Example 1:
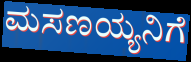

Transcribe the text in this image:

ಮಸಣಯ್ಯನಿಗೆ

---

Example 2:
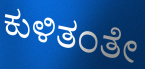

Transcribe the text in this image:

ಕುಳಿತಂತೇ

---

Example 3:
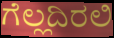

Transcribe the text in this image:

ಗೆಲ್ಲದಿರಲಿ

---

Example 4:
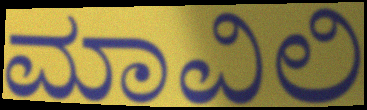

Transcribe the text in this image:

ಮಾವಿಲಿ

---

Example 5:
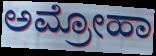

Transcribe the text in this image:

ಅಮ್ರೋಹಾ